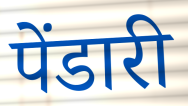
पेंडारी